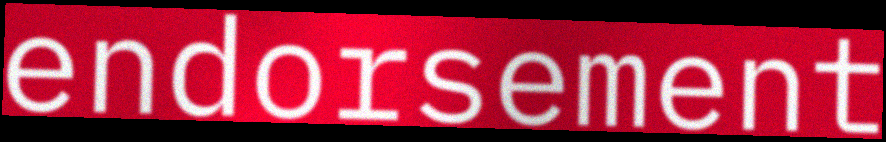
endorsement